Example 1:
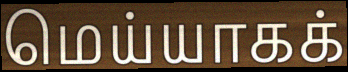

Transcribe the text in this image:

மெய்யாகக்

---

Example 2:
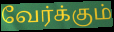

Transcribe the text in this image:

வேர்க்கும்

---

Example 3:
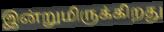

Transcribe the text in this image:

இன்றுமிருக்கிறது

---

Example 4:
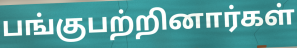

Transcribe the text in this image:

பங்குபற்றினார்கள்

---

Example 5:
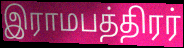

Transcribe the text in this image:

இராமபத்திரர்